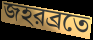
জহরব্রতে